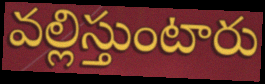
వల్లిస్తుంటారు